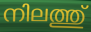
നിലത്തു്